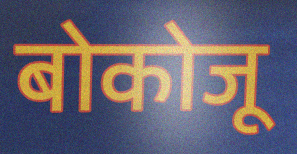
बोकोजू